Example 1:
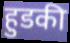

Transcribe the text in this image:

हुडकी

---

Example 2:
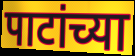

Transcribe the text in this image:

पाटांच्या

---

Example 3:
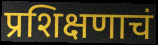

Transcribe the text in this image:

प्रशिक्षणाचं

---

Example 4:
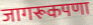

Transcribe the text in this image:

जागरूकपणा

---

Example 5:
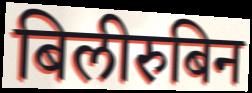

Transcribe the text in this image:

बिलीरुबिन